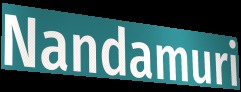
Nandamuri